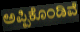
ಅಪ್ಪಿಕೊಂಡಿವೆ